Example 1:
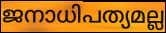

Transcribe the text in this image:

ജനാധിപത്യമല്ല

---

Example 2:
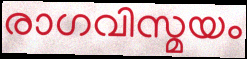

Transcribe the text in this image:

രാഗവിസ്മയം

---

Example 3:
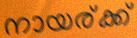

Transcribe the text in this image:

നായര്ക്ക്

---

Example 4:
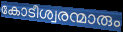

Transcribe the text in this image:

കോടീശ്വരന്മാരും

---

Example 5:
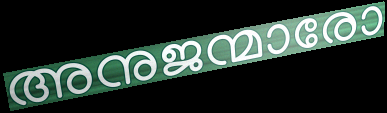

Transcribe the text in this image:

അനുജന്മാരോ